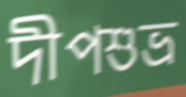
দীপশুভ্র